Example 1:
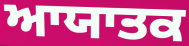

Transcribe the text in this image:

ਆਯਾਤਕ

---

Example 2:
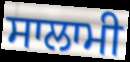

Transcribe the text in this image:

ਸਾਲਾਮੀ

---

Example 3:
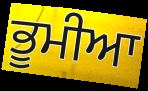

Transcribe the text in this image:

ਭੂਮੀਆ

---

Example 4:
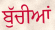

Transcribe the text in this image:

ਬੁੱਚੀਆਂ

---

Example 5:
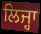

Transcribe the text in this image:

ਲਿਜ੍ਹਾ